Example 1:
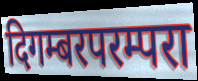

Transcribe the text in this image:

दिगम्बरपरम्परा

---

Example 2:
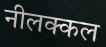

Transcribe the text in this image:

नीलक्कल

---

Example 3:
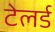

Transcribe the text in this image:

टेलर्ड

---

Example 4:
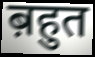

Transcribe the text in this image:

ब़हुत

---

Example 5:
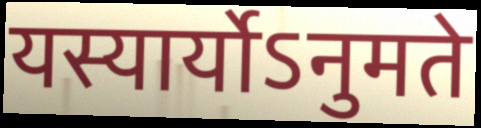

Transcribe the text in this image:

यस्यार्योऽनुमते